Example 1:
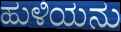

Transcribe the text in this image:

ಹುಳಿಯನು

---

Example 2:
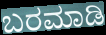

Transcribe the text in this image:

ಬರಮಾಡಿ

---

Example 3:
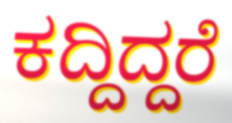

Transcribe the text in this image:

ಕದ್ದಿದ್ದರೆ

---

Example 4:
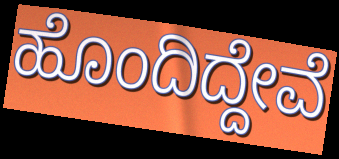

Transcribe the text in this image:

ಹೊಂದಿದ್ದೇವೆ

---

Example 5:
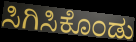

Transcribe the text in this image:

ಸಿಗಿಸಿಕೊಂಡು